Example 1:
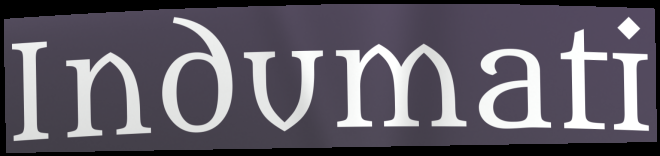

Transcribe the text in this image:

Indumati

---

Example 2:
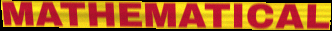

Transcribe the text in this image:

MATHEMATICAL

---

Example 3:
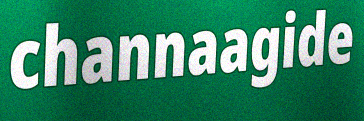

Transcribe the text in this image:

channaagide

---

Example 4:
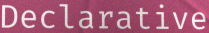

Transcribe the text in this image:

Declarative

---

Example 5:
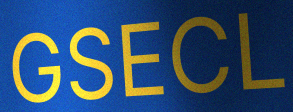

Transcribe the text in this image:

GSECL